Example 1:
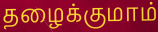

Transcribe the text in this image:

தழைக்குமாம்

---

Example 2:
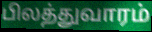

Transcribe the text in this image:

பிலத்துவாரம்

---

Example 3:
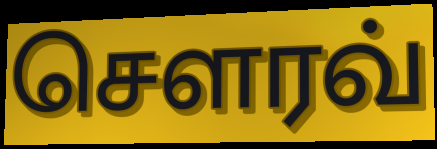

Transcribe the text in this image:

சௌரவ்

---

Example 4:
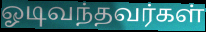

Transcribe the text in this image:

ஓடிவந்தவர்கள்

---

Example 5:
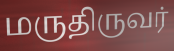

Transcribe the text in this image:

மருதிருவர்